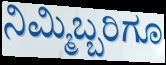
ನಿಮ್ಮಿಬ್ಬರಿಗೂ